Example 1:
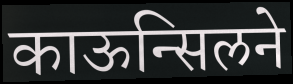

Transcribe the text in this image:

काऊन्सिलने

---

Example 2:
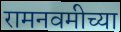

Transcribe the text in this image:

रामनवमीच्या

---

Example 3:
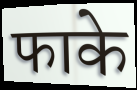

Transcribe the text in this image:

फाके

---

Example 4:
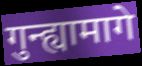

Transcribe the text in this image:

गुन्ह्यामागे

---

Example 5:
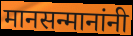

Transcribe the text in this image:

मानसन्मानांनी